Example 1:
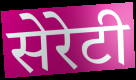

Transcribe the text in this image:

सेरेटी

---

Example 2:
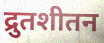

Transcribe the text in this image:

द्रुतशीतन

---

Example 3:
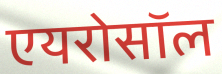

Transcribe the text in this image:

एयरोसॉल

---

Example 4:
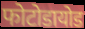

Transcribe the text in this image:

फोटोडायोड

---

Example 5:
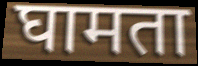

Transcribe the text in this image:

घामता